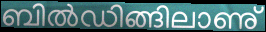
ബിൽഡിങ്ങിലാണു്